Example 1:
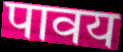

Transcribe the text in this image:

पावय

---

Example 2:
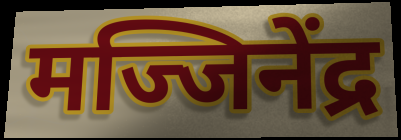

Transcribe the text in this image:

मज्जिनेंद्र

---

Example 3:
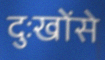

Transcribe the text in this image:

दुःखोंसे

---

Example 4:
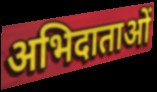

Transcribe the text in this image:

अभिदाताओं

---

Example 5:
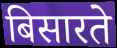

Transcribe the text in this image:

बिसारते